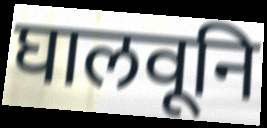
घालवूनि